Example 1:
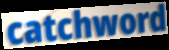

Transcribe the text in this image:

catchword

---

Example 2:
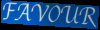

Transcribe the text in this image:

FAVOUR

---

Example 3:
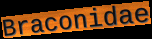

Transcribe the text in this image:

Braconidae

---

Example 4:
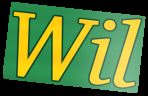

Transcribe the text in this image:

Wil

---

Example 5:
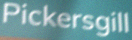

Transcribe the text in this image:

Pickersgill